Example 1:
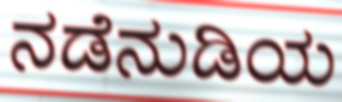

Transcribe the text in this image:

ನಡೆನುಡಿಯ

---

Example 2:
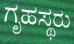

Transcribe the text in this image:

ಗೃಹಸ್ಥರು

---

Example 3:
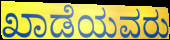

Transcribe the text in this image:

ಖಾಡೆಯವರು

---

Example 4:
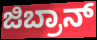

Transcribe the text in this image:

ಜಿಬ್ರಾನ್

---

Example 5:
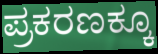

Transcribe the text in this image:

ಪ್ರಕರಣಕ್ಕೂ